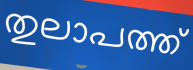
തുലാപത്ത്